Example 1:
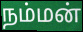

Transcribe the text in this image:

நம்மன்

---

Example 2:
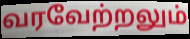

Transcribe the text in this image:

வரவேற்றலும்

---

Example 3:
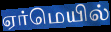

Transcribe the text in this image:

ஏர்மெயில்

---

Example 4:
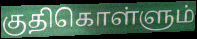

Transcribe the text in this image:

குதிகொள்ளும்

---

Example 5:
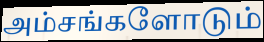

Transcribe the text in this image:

அம்சங்களோடும்